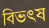
বিভৎষ